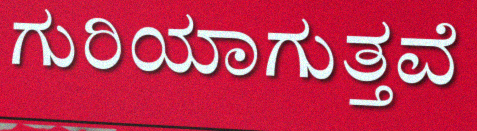
ಗುರಿಯಾಗುತ್ತವೆ